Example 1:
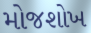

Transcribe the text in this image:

મોજશોખ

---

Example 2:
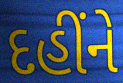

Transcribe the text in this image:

દહીંને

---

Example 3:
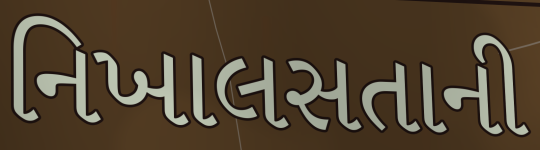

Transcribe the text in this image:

નિખાલસતાની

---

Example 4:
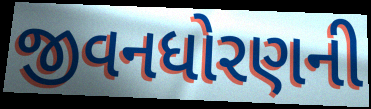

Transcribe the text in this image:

જીવનધોરણની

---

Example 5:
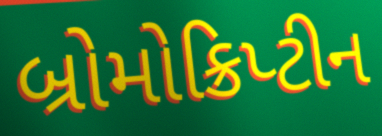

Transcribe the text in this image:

બ્રોમોક્રિપ્ટીન